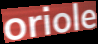
oriole